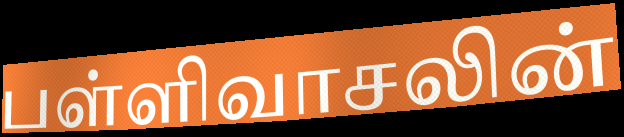
பள்ளிவாசலின்